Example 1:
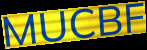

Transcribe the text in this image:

MUCBF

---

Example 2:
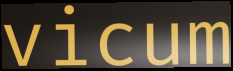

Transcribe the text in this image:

vicum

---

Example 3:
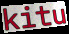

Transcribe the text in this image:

kitu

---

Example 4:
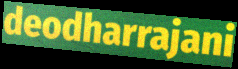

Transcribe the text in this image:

deodharrajani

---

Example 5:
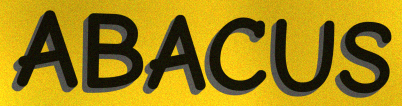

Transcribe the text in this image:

ABACUS